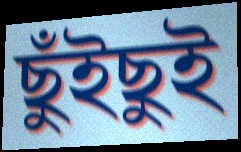
ছুঁইছুই